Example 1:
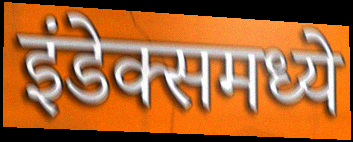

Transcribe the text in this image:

इंडेक्समध्ये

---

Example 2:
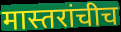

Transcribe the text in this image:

मास्तरांचीच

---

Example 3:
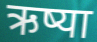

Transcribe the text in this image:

ऋष्या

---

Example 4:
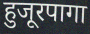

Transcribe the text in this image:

हुजूरपागा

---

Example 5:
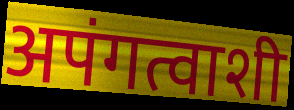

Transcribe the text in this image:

अपंगत्वाशी